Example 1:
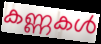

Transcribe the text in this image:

കണ്ണകൾ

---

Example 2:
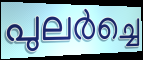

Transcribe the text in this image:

പുലർച്ചെ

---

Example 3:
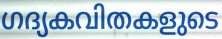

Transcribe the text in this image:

ഗദ്യകവിതകളുടെ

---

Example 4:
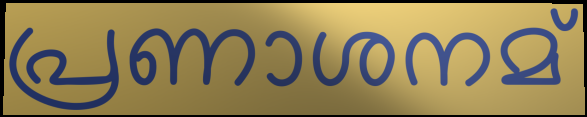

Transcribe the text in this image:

പ്രണാശനമ്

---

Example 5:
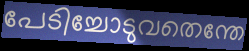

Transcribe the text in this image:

പേടിച്ചോടുവതെന്തേ